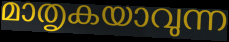
മാതൃകയാവുന്ന